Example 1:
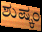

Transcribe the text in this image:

ಶುಷ್ಕಂ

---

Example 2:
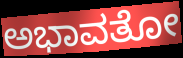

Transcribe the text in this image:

ಅಭಾವತೋ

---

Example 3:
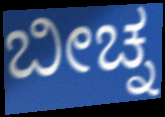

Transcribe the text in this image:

ಬೀಚ್ನ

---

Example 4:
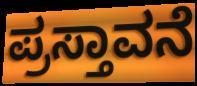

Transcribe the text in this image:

ಪ್ರಸ್ತಾವನೆ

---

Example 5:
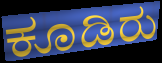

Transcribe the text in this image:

ಕೂಡಿರು